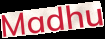
Madhu